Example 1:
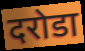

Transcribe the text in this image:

दरोडा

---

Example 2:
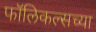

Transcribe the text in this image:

फॉलिकल्सच्या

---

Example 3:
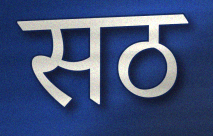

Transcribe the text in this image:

सठ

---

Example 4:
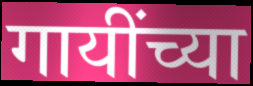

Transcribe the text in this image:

गायींच्या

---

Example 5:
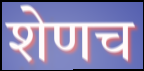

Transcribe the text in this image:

शेणच